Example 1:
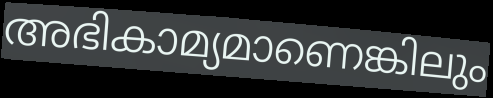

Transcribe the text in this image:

അഭികാമ്യമാണെങ്കിലും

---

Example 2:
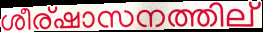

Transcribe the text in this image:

ശീര്ഷാസനത്തില്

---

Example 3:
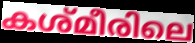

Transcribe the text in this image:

കശ്മീരിലെ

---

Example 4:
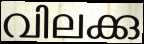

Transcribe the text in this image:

വിലക്കു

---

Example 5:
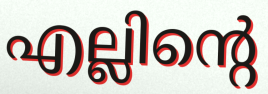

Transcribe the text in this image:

എല്ലിന്റെ